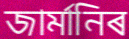
জাৰ্মানিৰ